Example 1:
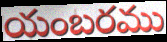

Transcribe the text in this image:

యంబరము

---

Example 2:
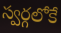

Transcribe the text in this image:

స్వర్గలోకే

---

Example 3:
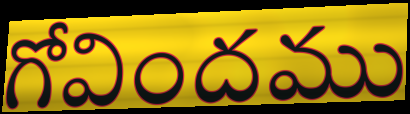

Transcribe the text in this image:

గోవిందము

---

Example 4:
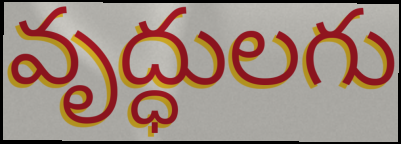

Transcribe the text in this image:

వృద్ధులగు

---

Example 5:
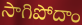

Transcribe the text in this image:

సాగిపోదాం